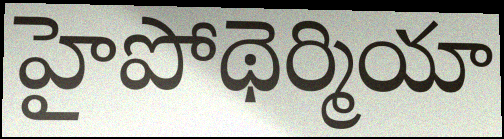
హైపోథెర్మియా